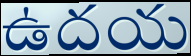
ఉదయ